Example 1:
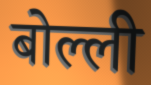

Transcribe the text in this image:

बोल्ली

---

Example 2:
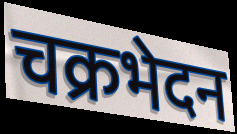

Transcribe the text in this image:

चक्रभेदन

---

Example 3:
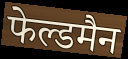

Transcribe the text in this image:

फेल्डमैन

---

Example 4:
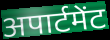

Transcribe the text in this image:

अपार्टमेंट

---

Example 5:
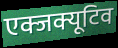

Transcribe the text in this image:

एक्जक्यूटिव